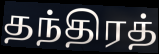
தந்திரத்